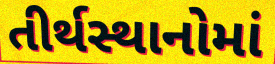
તીર્થસ્થાનોમાં